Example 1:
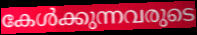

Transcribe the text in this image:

കേൾക്കുന്നവരുടെ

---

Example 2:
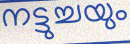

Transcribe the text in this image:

നട്ടുച്ചയും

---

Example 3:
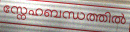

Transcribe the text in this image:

സ്നേഹബന്ധത്തിൽ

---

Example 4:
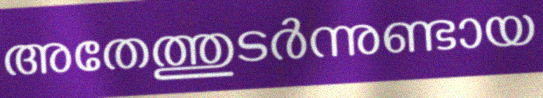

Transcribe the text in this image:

അതേത്തുടർന്നുണ്ടായ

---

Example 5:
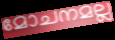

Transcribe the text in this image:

മോചനമല്ല